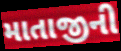
માતાજીની